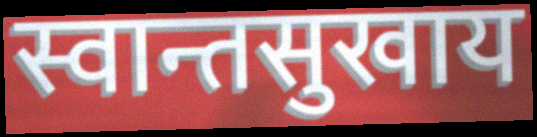
स्वान्तसुखाय